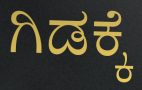
ಗಿಡಕ್ಕೆ